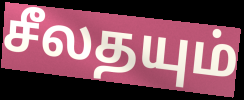
சீலதயும்